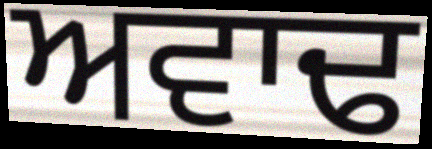
ਅਵਾਢ